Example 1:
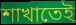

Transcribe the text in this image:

শাখাতেই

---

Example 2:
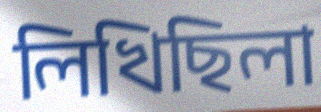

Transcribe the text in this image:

লিখিছিলা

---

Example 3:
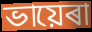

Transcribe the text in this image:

ভায়েৰা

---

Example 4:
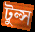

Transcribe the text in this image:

টুল্স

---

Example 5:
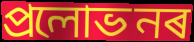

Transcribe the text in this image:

প্ৰলোভনৰ